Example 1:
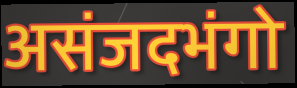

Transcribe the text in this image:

असंजदभंगो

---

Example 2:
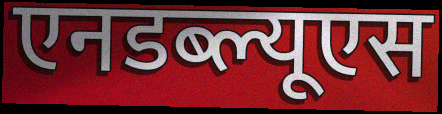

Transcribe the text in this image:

एनडब्ल्यूएस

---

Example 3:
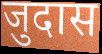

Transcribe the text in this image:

जुदास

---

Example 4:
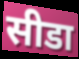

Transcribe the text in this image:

सीडा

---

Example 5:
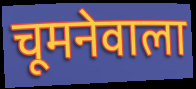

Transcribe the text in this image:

चूमनेवाला